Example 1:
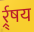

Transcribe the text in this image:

र्र्र्षय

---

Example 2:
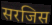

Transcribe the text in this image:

सरजिस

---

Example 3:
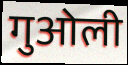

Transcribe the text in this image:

गुओली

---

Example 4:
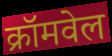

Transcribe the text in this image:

क्रॉमवेल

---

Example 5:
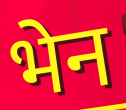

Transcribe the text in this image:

भेन